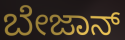
ಬೇಜಾನ್